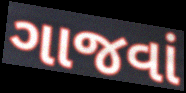
ગાજવાં